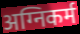
अग्निकर्म